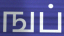
ஙப்